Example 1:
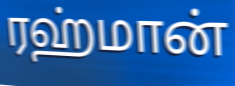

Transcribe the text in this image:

ரஹ்மான்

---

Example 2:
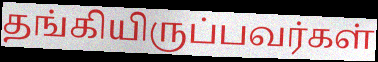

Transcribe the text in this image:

தங்கியிருப்பவர்கள்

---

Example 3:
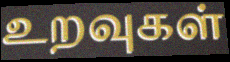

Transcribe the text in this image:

உறவுகள்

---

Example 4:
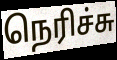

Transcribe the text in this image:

நெரிச்சு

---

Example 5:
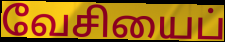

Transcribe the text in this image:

வேசியைப்